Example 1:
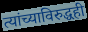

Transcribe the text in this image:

त्यांच्याविरुद्धही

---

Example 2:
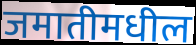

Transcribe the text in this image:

जमातीमधील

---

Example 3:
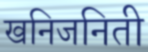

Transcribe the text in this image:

खनिजनिती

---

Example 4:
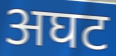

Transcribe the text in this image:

अघट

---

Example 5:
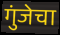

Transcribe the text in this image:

गुंजेचा